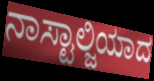
ನಾಸ್ಟಾಲ್ಜಿಯಾದ